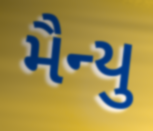
મૈન્યુ